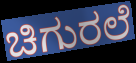
ಚಿಗುರಲೆ